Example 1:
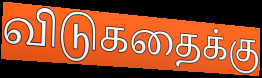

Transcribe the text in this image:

விடுகதைக்கு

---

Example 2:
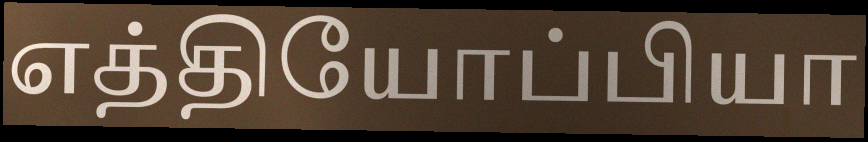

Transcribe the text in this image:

எத்தியோப்பியா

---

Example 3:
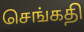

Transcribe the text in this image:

செங்கதி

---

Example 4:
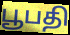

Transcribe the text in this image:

பூபதி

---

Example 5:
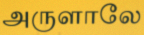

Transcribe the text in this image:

அருளாலே